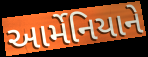
આર્મેનિયાને